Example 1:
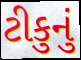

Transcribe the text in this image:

ટીકુનું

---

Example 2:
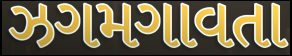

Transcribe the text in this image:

ઝગમગાવતા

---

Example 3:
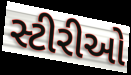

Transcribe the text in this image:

સ્ટીરીઓ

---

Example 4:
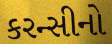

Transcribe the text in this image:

કરન્સીનો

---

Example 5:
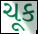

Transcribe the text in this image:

ચૂક